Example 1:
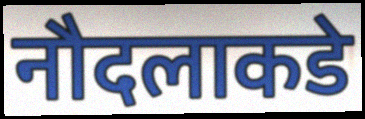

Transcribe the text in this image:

नौदलाकडे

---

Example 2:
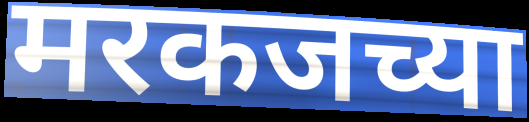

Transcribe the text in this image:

मरकजच्या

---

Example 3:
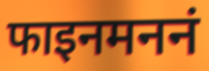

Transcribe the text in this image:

फाइनमननं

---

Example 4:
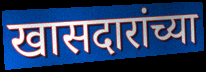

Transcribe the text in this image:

खासदारांच्या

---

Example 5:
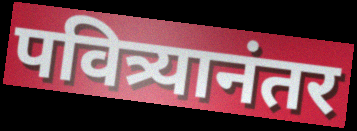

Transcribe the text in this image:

पवित्र्यानंतर